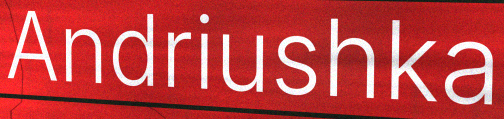
Andriushka